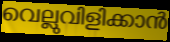
വെല്ലുവിളിക്കാൻ